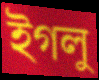
ইগলু